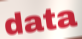
data